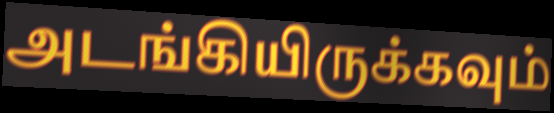
அடங்கியிருக்கவும்